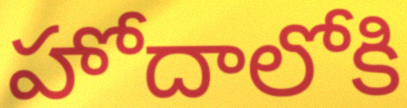
హోదాలోకి